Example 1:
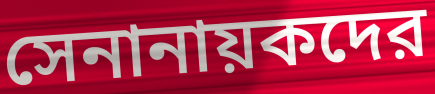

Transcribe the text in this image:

সেনানায়কদের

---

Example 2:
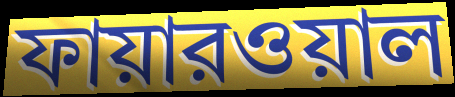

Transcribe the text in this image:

ফায়ারওয়াল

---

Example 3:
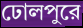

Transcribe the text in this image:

ঢোলপুরে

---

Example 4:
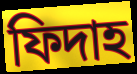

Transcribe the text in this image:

ফিদাহ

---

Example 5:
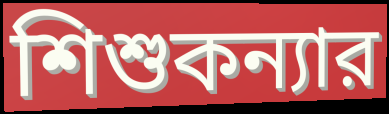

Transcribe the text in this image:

শিশুকন্যার